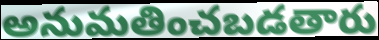
అనుమతించబడతారు